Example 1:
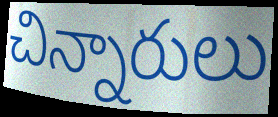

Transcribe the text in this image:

చిన్నారులు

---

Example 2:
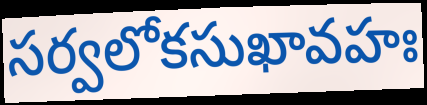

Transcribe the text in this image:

సర్వలోకసుఖావహః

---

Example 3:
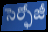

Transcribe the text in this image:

సెర్ఫోజీ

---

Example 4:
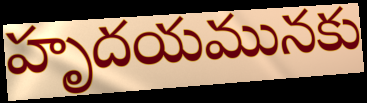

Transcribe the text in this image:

హృదయమునకు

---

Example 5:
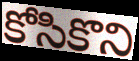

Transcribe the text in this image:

కోసికొని